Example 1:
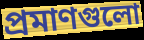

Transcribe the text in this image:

প্রমাণগুলো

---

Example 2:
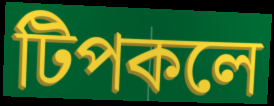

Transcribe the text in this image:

টিপকলে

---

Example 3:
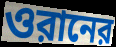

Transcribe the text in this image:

ওরানের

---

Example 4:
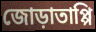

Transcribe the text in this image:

জোড়াতাপ্পি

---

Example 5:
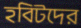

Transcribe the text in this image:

হবিটদের